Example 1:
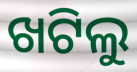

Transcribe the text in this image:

ଖଟିଲୁ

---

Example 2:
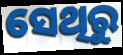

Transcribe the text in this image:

ସେଥିରୁ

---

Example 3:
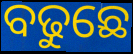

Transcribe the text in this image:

ବଢୁଛେ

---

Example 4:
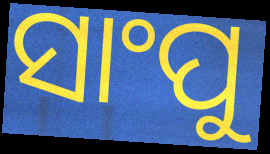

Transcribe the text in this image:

ସାଂପୁ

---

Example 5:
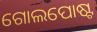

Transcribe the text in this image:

ଗୋଲପୋଷ୍ଟ